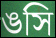
ঙসি